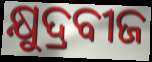
କ୍ଷୁଦ୍ରବୀଜ